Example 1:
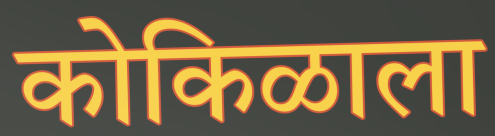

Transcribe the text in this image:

कोकिळाला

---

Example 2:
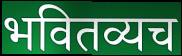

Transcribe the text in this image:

भवितव्यच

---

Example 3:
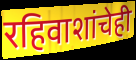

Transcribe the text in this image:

रहिवाशांचेही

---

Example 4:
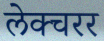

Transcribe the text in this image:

लेक्चरर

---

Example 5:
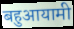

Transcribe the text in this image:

बहुआयामी